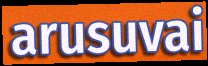
arusuvai